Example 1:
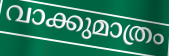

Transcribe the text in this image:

വാക്കുമാത്രം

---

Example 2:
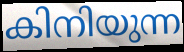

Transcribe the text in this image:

കിനിയുന്ന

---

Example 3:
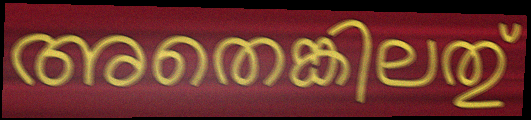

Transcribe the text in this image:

അതെങ്കിലതു്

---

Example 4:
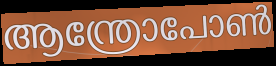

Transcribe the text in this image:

ആന്ത്രോപോൺ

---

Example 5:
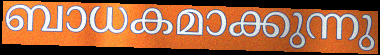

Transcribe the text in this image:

ബാധകമാക്കുന്നു